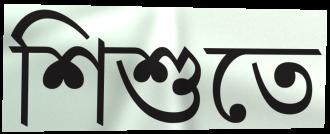
শিশুতে